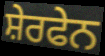
ਸ਼ੇਰਫੇਨ